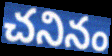
చనినం